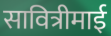
सावित्रीमाई